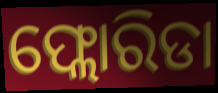
ଫ୍ଲୋରିଡା